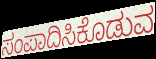
ಸಂಪಾದಿಸಿಕೊಡುವ